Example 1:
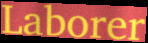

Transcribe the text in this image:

Laborer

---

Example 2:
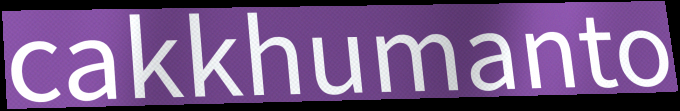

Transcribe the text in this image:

cakkhumanto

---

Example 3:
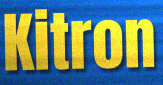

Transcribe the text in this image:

Kitron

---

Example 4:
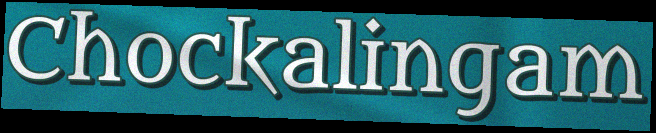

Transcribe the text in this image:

Chockalingam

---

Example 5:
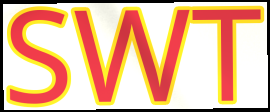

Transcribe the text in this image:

SWT